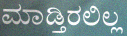
ಮಾಡ್ತಿರಲಿಲ್ಲ